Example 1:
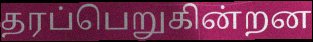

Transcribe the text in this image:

தரப்பெறுகின்றன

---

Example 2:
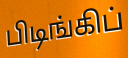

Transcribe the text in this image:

பிடிங்கிப்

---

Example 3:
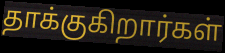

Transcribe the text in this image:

தாக்குகிறார்கள்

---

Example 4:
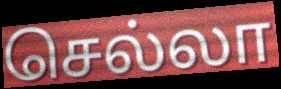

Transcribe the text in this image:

செல்லா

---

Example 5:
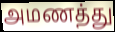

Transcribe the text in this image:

அமணத்து